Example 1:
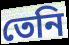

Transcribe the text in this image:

তেনি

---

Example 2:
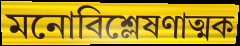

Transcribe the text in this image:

মনোবিশ্লেষণাত্মক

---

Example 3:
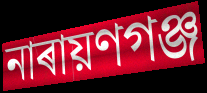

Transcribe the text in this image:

নাৰায়ণগঞ্জ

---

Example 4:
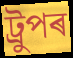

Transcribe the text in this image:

ট্ৰুপৰ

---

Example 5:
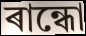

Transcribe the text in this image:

ৰান্ধো